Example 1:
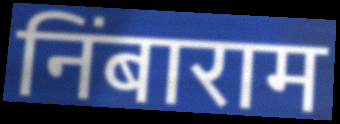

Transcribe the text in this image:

निंबाराम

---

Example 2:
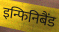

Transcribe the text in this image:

इन्फिनिबैंड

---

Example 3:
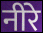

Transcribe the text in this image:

नीरे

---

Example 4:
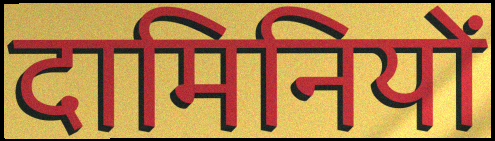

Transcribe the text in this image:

दामिनियों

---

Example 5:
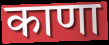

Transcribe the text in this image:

काणा